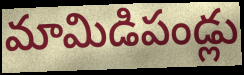
మామిడిపండ్లు